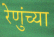
रेणुंच्या